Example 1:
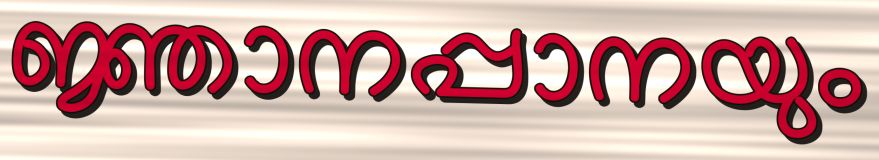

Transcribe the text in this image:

ജ്ഞാനപ്പാനയും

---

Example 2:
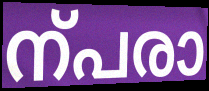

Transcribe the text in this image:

ന്പരാ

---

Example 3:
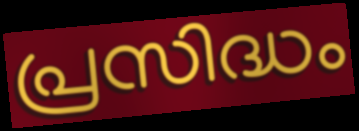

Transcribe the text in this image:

പ്രസിദ്ധം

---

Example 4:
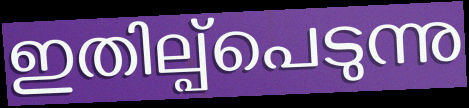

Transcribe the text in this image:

ഇതില്പ്പെടുന്നു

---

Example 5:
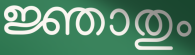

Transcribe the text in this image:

ജ്ഞാതും